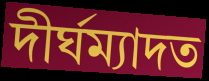
দীৰ্ঘম্যাদত